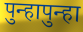
पुन्हापुन्हा